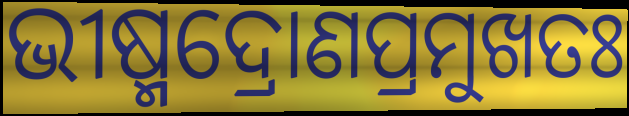
ଭୀଷ୍ମଦ୍ରୋଣପ୍ରମୁଖତଃ